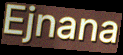
Ejnana